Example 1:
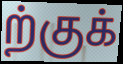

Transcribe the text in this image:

ற்குக்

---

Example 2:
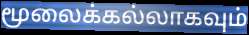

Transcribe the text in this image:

மூலைக்கல்லாகவும்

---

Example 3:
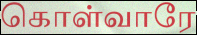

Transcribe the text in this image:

கொள்வாரே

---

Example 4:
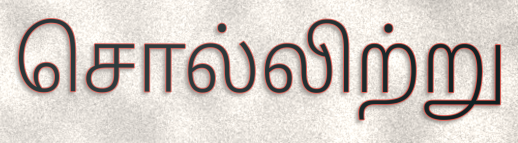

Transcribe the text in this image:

சொல்லிற்று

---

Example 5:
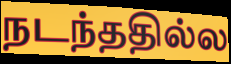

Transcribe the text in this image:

நடந்ததில்ல